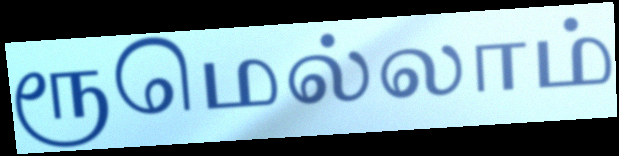
ரூமெல்லாம்